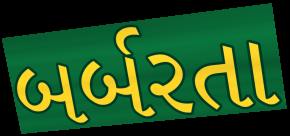
બર્બરતા